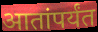
आतांपर्यंत